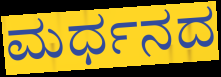
ಮರ್ಧನದ